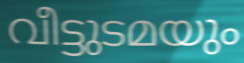
വീട്ടുടമയും